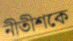
নীতীশকে